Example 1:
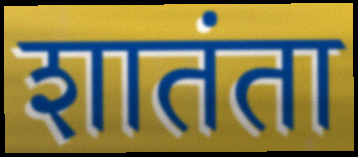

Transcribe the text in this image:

शातंता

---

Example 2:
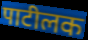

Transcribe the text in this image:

पाटीलक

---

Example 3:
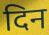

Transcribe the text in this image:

दिन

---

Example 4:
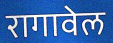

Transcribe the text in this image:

रागावेल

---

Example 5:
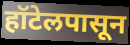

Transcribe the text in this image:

हॉटेलपासून